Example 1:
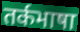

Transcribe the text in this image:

तर्कभाषा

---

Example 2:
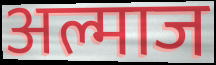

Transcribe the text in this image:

अल्माज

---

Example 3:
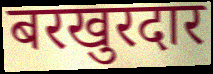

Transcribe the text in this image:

बरखुरदार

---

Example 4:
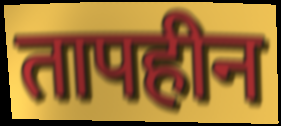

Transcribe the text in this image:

तापहीन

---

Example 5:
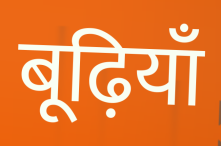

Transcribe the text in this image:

बूढ़ियाँ